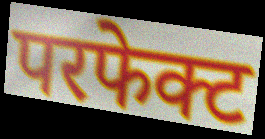
परफेक्ट